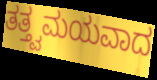
ತತ್ತ್ವಮಯವಾದ